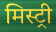
मिस्ट्री